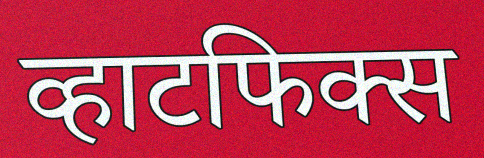
व्हाटफिक्स